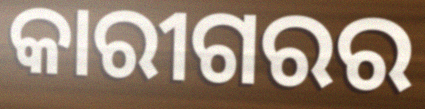
କାରୀଗରର